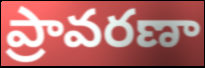
ప్రావరణా